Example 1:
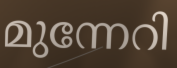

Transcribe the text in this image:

മുന്നേറി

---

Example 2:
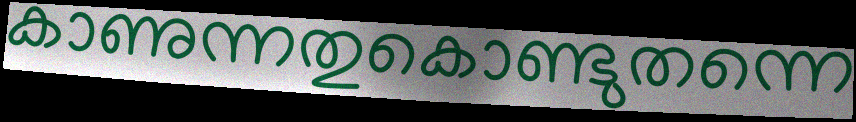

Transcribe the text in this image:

കാണുന്നതുകൊണ്ടുതന്നെ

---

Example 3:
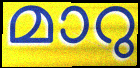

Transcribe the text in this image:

മാറു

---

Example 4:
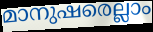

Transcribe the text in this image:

മാനുഷരെല്ലാം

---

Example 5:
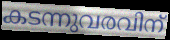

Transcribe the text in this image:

കടന്നുവരവിന്